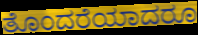
ತೊಂದರೆಯಾದರೂ